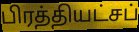
பிரத்தியட்சப்